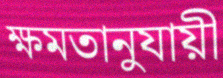
ক্ষমতানুযায়ী